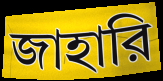
জাহারি